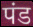
पंड